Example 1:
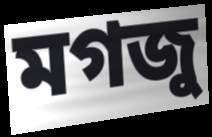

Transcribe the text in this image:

মগজু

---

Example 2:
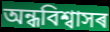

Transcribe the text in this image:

অন্ধবিশ্বাসৰ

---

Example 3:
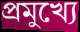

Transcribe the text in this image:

প্ৰমুখ্যে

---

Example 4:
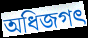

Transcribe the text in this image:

অধিজগৎ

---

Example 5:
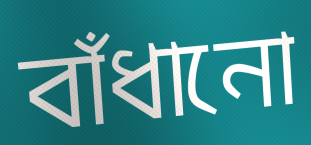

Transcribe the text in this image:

বাঁধানো